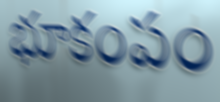
భూకంపం